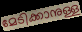
മേടിക്കാനുള്ള